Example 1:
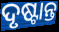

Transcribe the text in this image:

ଦୃଷ୍ଟାନ୍ତ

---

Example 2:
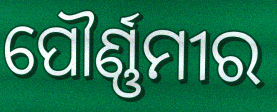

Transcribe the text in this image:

ପୌର୍ଣ୍ଣମୀର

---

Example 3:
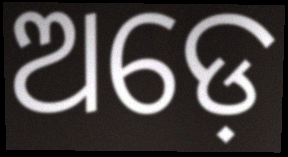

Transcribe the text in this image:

ଅଡ଼େ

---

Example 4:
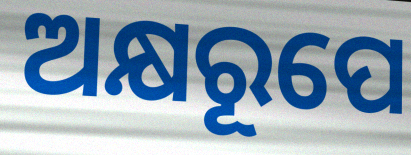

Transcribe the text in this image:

ଅକ୍ଷରୂପେ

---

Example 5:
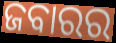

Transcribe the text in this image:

ଜବାରର